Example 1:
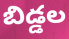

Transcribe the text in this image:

బిడ్డల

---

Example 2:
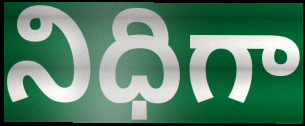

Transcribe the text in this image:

నిధిగా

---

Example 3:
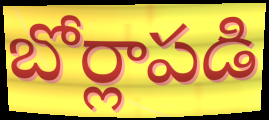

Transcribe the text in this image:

బోర్లాపడి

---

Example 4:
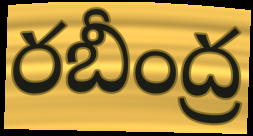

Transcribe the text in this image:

రబీంద్ర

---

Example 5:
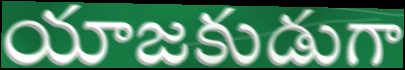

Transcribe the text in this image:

యాజకుడుగా